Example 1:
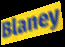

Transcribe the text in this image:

Blaney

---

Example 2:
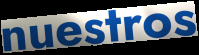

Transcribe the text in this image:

nuestros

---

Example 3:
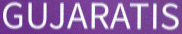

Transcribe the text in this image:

GUJARATIS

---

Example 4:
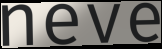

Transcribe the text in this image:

neve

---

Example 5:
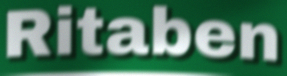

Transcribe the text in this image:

Ritaben